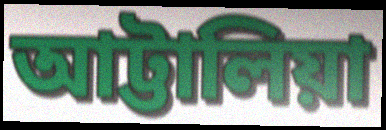
আট্টালিয়া